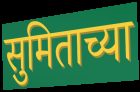
सुमिताच्या